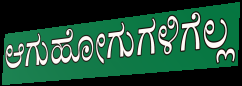
ಆಗುಹೋಗುಗಳಿಗೆಲ್ಲ